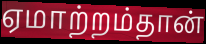
ஏமாற்றம்தான்